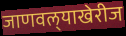
जाणवल्याखेरीज